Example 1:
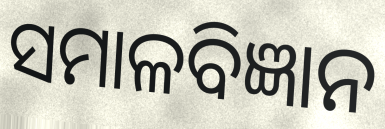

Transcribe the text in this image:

ସମାଳବିଜ୍ଞାନ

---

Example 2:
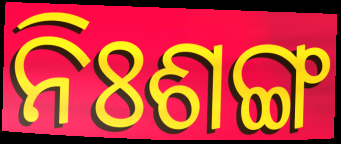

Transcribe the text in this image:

ନିଃଶଙ୍ଗ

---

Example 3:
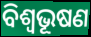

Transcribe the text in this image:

ବିଶ୍ୱଭୂଷଣ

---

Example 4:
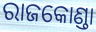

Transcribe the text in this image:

ରାଜକୋଣ୍ଡା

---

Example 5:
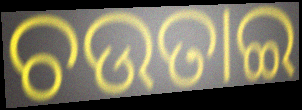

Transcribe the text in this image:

ଚଉତାଇ